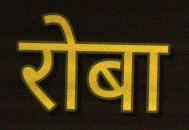
रोबा